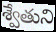
శ్వేతుని